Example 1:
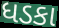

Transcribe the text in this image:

ધડકા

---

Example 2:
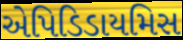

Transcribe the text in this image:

એપિડિડાયમિસ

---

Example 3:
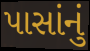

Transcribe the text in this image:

પાસાંનું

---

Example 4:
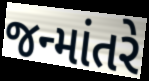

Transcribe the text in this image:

જન્માંતરે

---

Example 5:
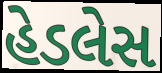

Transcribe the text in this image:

હેડલેસ